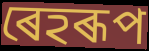
ৰেহৰূপ